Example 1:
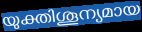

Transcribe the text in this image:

യുക്തിശൂന്യമായ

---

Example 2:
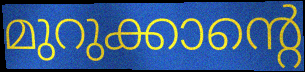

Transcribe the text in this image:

മുറുക്കാന്റെ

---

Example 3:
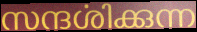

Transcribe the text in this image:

സന്ദൎശിക്കുന്ന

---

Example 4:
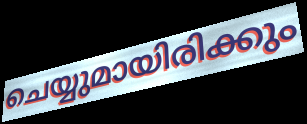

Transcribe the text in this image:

ചെയ്യുമായിരിക്കും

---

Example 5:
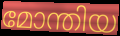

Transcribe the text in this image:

മോന്തിയ